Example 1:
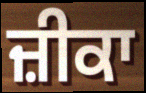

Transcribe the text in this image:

ਜ਼ੀਕਾ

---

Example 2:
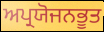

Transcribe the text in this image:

ਅਪ੍ਰਯੋਜਨਭੂਤ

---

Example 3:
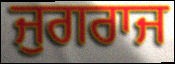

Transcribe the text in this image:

ਜੁਗਰਾਜ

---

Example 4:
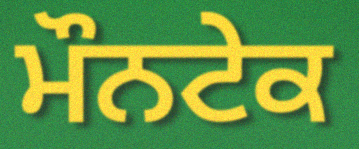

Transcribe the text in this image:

ਮੌਨਟੇਕ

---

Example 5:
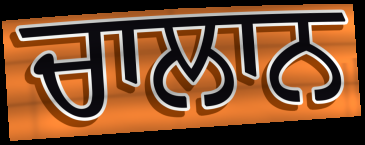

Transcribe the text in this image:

ਚਾਲਾਨ